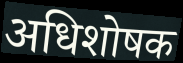
अधिशोषक